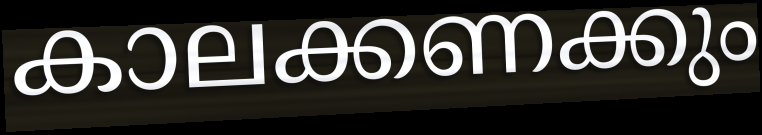
കാലക്കണക്കും